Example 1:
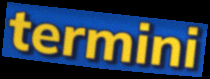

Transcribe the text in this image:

termini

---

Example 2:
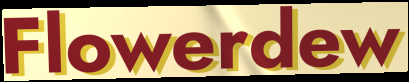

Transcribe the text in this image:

Flowerdew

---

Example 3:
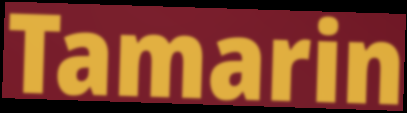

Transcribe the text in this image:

Tamarin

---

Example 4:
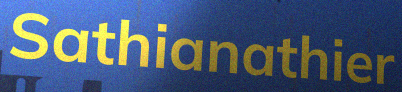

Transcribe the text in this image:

Sathianathier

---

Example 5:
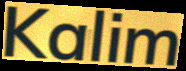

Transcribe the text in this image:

Kalim